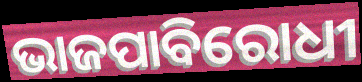
ଭାଜପାବିରୋଧୀ